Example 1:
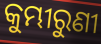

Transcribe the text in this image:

କୁମ୍ଭୀରୁଣୀ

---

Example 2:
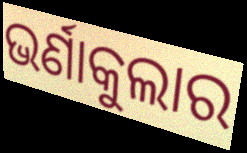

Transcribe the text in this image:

ଭର୍ଣାକୁଲାର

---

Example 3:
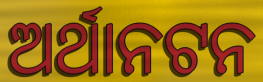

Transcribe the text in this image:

ଅର୍ଥାନଟନ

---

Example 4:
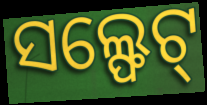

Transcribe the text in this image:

ସଲ୍ଫେଟ୍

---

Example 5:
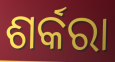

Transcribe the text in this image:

ଶର୍କରା